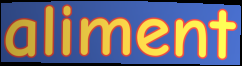
aliment